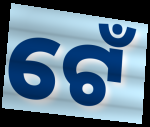
ଟେଁ